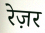
रेज़र